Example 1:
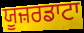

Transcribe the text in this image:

ਯੂਜ਼ਰਡਾਟਾ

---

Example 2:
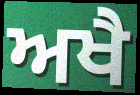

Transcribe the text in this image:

ਅਖੈ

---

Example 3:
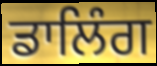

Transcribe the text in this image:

ਡਾਲਿੰਗ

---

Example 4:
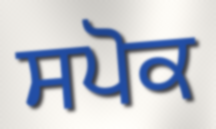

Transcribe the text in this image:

ਸਪੋਕ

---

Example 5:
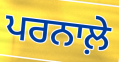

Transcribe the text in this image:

ਪਰਨਾਲ਼ੇ